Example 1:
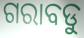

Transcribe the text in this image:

ଗରାବଡୁ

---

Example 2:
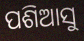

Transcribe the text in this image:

ପଶିଆସୁ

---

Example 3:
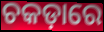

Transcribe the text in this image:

ଚକଡ଼ାରେ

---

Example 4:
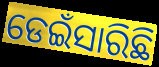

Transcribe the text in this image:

ଡେଇଁସାରିଛି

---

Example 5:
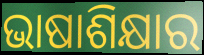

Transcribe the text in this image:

ଭାଷାଶିକ୍ଷାର